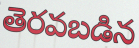
తెరవబడిన